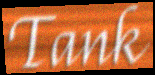
Tank